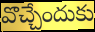
వొచ్చేందుకు